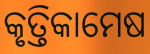
କୃତ୍ତିକାମେଷ